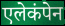
एलेकंपेन